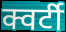
क्वर्टी